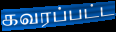
கவரப்பட்ட